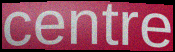
centre